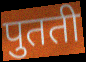
पुतती